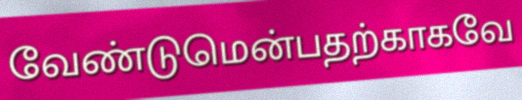
வேண்டுமென்பதற்காகவே